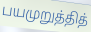
பயமுறுத்தித்